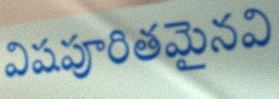
విషపూరితమైనవి